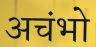
अचंभो